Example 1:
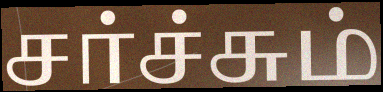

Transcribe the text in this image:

சர்ச்சும்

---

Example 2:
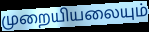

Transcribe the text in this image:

முறையியலையும்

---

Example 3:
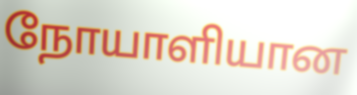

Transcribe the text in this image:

நோயாளியான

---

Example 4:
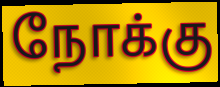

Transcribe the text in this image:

நோக்கு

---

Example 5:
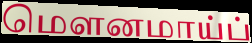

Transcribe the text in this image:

மௌனமாய்ப்